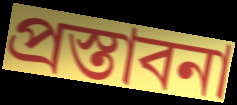
প্রস্তাবনা